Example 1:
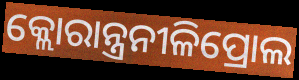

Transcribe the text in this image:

କ୍ଲୋରାନ୍ତ୍ରନୀଳିପ୍ରୋଲ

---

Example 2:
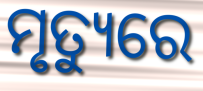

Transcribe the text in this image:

ମୃତ୍ୟୁରେ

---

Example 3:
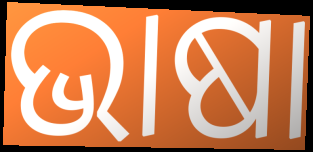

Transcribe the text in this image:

ଭାଷା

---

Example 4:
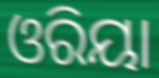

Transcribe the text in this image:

ଓରିୟା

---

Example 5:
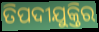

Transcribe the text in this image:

ତିପଦୀଯୁକ୍ତିର